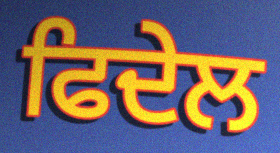
ਫਿਦੇਲ